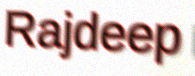
Rajdeep